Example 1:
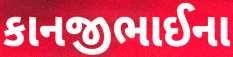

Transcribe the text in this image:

કાનજીભાઈના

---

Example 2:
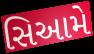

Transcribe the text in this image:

સિઆમે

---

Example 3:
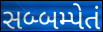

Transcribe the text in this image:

સબ્બમ્પેતં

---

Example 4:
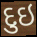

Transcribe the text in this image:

દુઇ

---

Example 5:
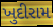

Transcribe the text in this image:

ખુદીરામ